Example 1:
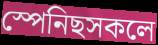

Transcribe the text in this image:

স্পেনিছসকলে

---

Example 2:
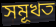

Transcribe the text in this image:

সমূখত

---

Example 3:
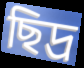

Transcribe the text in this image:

ছিদ্ৰ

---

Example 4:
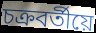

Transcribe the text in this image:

চক্ৰবৰ্তীয়ে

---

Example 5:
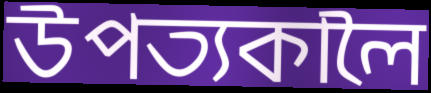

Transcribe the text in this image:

উপত্যকালৈ